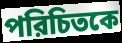
পরিচিতকে